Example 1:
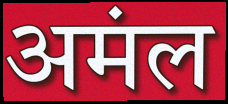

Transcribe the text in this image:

अमंल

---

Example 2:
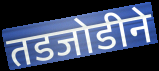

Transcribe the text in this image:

तडजोडीने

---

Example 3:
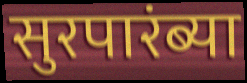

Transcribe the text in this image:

सुरपारंब्या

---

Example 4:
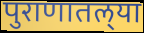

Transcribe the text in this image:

पुराणातल्या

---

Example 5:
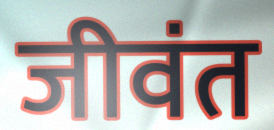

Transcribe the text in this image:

जीवंत